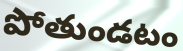
పోతుండటం